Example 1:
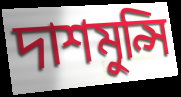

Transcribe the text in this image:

দাশমুন্সি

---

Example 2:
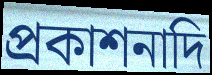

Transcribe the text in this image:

প্রকাশনাদি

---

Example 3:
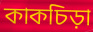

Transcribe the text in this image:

কাকচিড়া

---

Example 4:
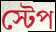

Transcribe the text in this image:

স্টেপ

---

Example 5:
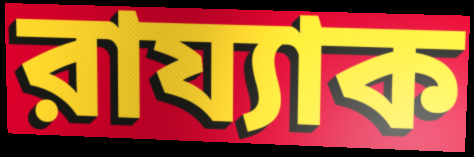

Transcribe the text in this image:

রায্যাক